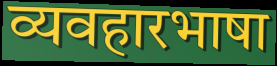
व्यवहारभाषा